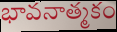
భావనాత్మకం